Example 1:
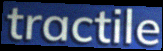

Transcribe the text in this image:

tractile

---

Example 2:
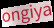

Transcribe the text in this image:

ongiya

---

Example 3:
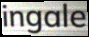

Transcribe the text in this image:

ingale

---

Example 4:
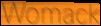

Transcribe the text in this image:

Womack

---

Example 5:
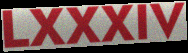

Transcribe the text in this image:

LXXXIV